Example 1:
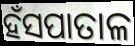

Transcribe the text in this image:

ହଁସପାତାଳ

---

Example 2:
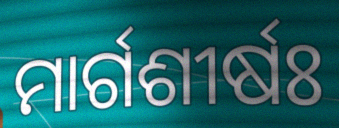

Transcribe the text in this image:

ମାର୍ଗଶୀର୍ଷଃ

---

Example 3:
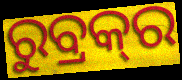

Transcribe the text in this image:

ରୁବ୍ରକ୍‍ର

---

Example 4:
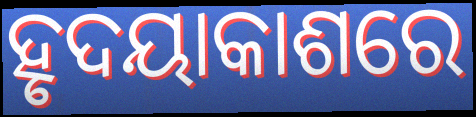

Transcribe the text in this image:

ହୃଦୟାକାଶରେ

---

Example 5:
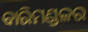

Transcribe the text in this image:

ବାରିମଣ୍ଡଳର